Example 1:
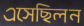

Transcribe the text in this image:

এসেছিলন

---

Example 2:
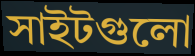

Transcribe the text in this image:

সাইটগুলো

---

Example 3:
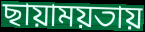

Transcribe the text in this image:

ছায়াময়তায়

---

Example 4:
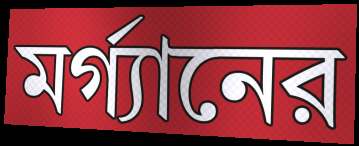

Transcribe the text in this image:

মর্গ্যানের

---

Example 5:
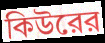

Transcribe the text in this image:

কিউরের